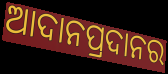
ଆଦାନପ୍ରଦାନର